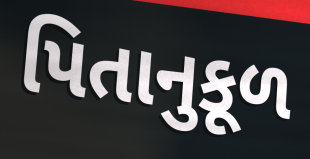
પિતાનુકૂળ